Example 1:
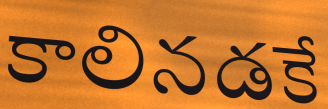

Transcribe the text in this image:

కాలినడకే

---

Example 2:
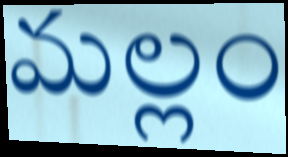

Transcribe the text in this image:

మల్లం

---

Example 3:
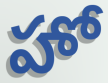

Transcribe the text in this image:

హో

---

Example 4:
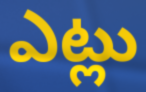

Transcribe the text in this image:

ఎట్లు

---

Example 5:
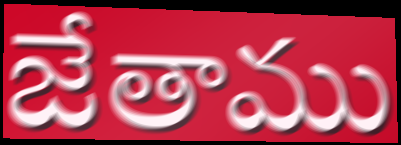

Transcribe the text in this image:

జేతాము